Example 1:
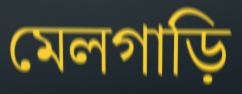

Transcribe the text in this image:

মেলগাড়ি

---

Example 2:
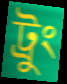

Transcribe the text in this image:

ট্রুং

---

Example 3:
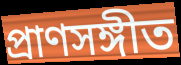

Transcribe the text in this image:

প্রাণসঙ্গীত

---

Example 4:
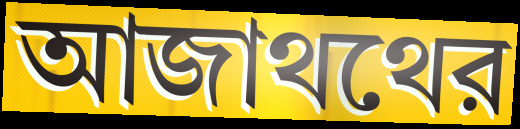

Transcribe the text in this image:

আজাথথের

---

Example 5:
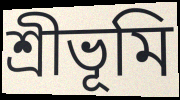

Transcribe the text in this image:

শ্রীভূমি